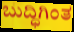
ಬುದ್ಧಿಗಿಂತ